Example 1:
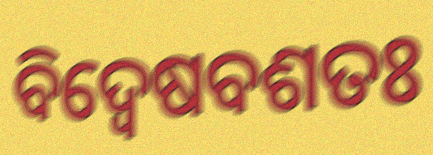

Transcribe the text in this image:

ବିଦ୍ୱେଷବଶତଃ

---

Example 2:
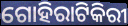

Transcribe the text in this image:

ଗୋହିରାଟିକିରୀ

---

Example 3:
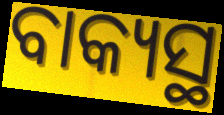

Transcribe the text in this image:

ବାକ୍ୟସ୍ଥ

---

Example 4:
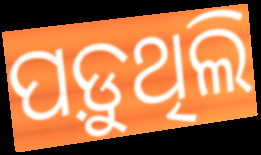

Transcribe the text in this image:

ପଡ଼ୁଥିଲି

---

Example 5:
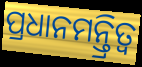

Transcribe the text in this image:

ପ୍ରଧାନମନ୍ତ୍ରିତ୍ଵ